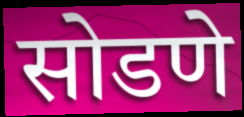
सोडणे